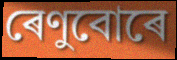
ৰেণুবোৰে